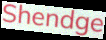
Shendge